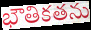
భౌతికతను